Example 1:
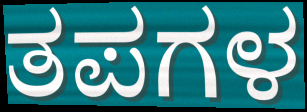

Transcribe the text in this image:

ತಪಗಳ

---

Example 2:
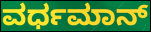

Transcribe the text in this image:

ವರ್ಧಮಾನ್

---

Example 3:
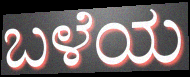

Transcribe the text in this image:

ಬಳೆಯ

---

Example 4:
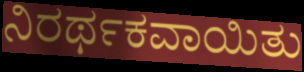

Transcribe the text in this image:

ನಿರರ್ಥಕವಾಯಿತು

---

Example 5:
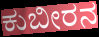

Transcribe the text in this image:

ಕುಬೀರನ